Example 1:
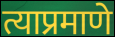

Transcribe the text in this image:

त्याप्रमाणे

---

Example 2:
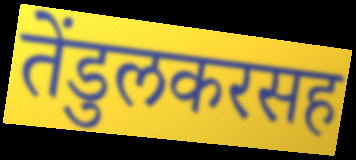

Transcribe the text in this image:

तेंडुलकरसह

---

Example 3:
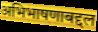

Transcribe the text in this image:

अभिभाषणाबद्दल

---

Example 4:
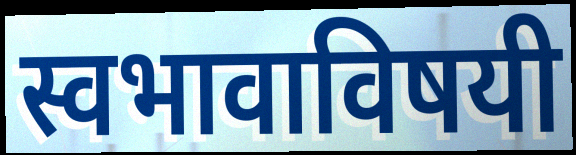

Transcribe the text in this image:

स्वभावाविषयी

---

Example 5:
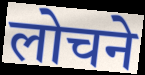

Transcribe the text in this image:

लोचने